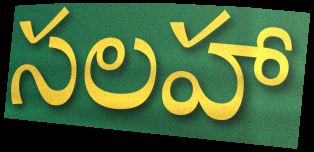
సలహా